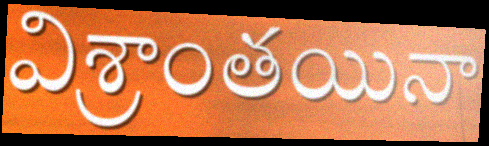
విశ్రాంతయినా